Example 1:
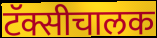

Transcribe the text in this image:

टॅक्सीचालक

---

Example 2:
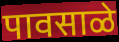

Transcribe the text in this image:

पावसाळे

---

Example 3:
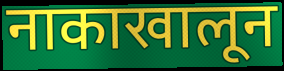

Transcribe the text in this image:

नाकाखालून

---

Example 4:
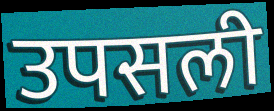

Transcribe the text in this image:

उपसली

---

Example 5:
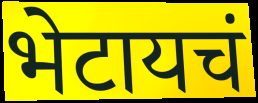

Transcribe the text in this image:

भेटायचं